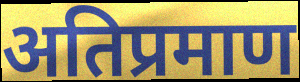
अतिप्रमाण